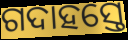
ଗଦାହସ୍ତେ